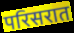
परिसरात